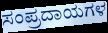
ಸಂಪ್ರದಾಯಗಳ